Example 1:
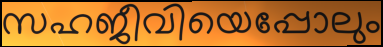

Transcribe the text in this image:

സഹജീവിയെപ്പോലും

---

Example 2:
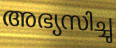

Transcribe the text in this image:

അഭ്യസിച്ചു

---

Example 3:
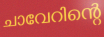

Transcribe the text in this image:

ചാവേറിന്റെ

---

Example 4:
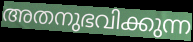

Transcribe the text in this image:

അതനുഭവിക്കുന്ന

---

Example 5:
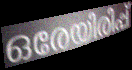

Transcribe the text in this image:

ഒരേയിരിപ്പ്